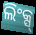
ଲିଂକ୍ସ୍